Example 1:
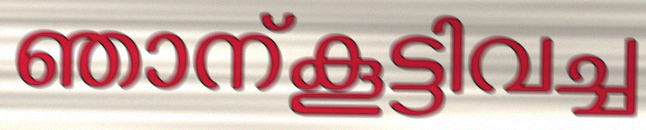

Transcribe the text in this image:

ഞാന്കൂട്ടിവച്ച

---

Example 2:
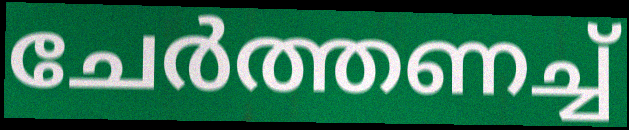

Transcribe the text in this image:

ചേർത്തണച്ച്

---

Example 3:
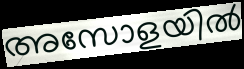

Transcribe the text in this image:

അസോളയിൽ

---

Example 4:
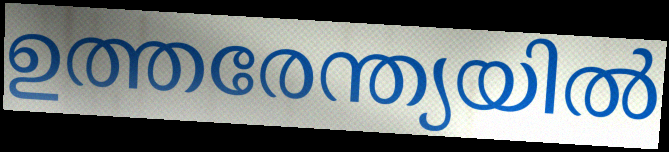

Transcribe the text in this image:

ഉത്തരേന്ത്യയിൽ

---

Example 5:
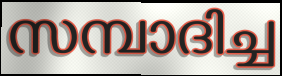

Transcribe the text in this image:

സമ്പാദിച്ച